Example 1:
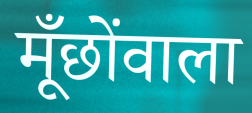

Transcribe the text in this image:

मूँछोंवाला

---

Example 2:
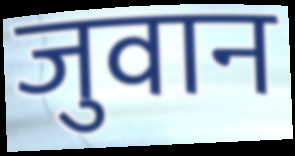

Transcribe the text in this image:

जुवान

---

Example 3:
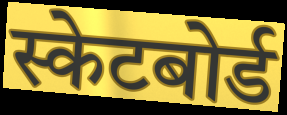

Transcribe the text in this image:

स्केटबोर्ड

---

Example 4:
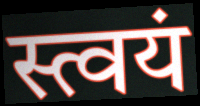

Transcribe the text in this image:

स्त्वयं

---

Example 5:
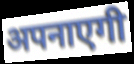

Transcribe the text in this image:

अपनाएगी